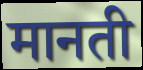
मानती